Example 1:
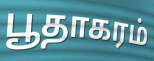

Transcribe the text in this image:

பூதாகரம்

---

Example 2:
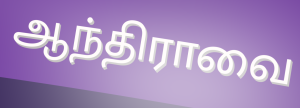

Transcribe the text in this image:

ஆந்திராவை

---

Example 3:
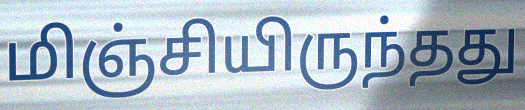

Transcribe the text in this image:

மிஞ்சியிருந்தது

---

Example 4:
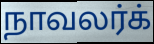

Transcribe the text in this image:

நாவலர்க்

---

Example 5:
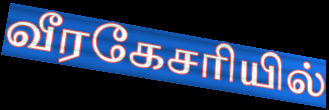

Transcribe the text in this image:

வீரகேசரியில்